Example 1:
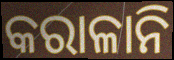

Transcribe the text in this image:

କରାଳାନି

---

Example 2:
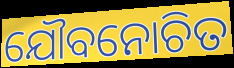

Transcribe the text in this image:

ଯୌବନୋଚିତ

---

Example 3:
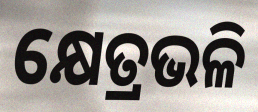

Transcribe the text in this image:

କ୍ଷେତ୍ରଭଳି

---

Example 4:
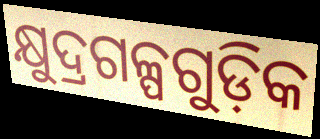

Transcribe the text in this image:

କ୍ଷୁଦ୍ରଗଳ୍ପଗୁଡ଼ିକ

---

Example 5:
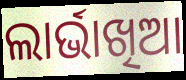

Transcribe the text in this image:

ଲାର୍ଭାଖିଆ